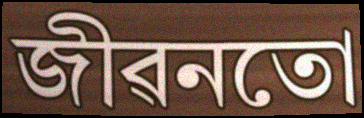
জীৱনতো